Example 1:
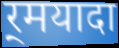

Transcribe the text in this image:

र्मयादा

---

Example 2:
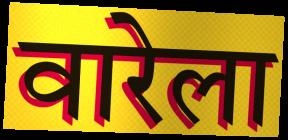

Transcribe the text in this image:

वारेला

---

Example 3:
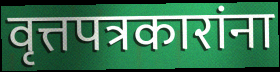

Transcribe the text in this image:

वृत्तपत्रकारांना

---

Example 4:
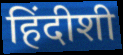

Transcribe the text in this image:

हिंदीशी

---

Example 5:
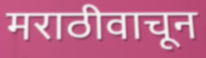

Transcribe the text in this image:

मराठीवाचून